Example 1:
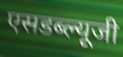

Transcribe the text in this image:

एसडब्ल्यूजी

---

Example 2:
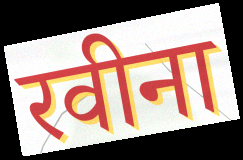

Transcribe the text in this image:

रवीना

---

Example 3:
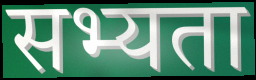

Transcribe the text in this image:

सभ्यता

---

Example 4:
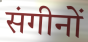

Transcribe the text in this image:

संगीनों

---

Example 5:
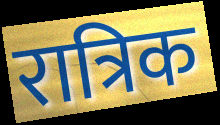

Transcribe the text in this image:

रात्रिक